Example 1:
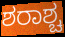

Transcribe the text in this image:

ಶರಾಶ್ಚ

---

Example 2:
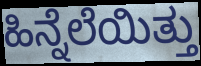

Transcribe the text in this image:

ಹಿನ್ನೆಲೆಯಿತ್ತು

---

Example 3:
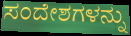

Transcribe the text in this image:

ಸಂದೇಶಗಳನ್ನು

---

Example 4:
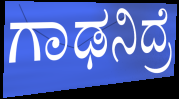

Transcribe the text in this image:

ಗಾಢನಿದ್ರೆ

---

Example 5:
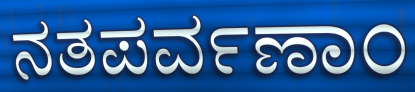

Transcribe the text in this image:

ನತಪರ್ವಣಾಂ